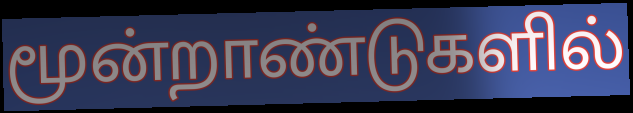
மூன்றாண்டுகளில்